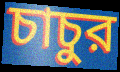
চাচুর